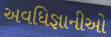
અવધિજ્ઞાનીઓ